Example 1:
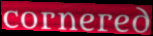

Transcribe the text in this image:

cornered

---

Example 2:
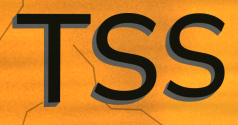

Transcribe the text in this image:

TSS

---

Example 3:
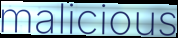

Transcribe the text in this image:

malicious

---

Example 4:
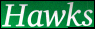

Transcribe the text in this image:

Hawks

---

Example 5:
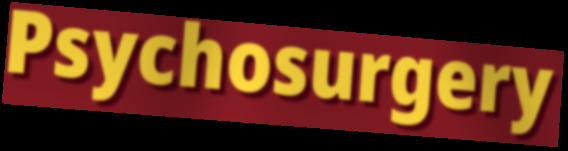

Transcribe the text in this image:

Psychosurgery